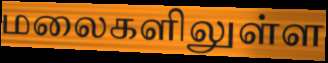
மலைகளிலுள்ள